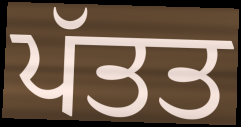
ਪੱਤਤ